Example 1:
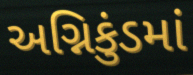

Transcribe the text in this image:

અગ્નિકુંડમાં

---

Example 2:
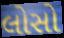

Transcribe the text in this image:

લોસો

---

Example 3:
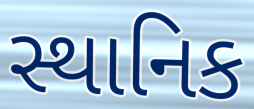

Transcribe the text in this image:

સ્થાનિક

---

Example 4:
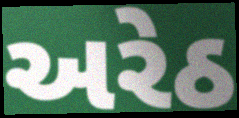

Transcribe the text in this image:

અરેઠ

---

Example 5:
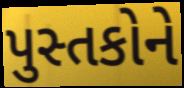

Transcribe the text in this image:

પુસ્તકોને